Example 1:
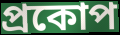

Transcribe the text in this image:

প্ৰকোপ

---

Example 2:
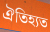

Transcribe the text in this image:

ঐতিহ্যত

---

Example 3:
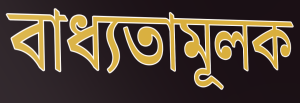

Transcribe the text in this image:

বাধ্যতামূলক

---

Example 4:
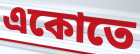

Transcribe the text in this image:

একোতে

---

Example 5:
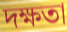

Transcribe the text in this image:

দক্ষতা